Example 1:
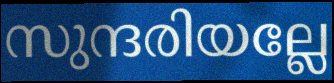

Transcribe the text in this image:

സുന്ദരിയല്ലേ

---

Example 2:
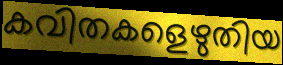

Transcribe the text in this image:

കവിതകളെഴുതിയ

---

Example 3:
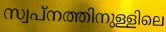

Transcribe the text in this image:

സ്വപ്നത്തിനുള്ളിലെ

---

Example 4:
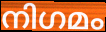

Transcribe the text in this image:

നിഗമം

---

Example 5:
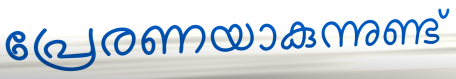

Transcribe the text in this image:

പ്രേരണയാകുന്നുണ്ട്